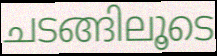
ചടങ്ങിലൂടെ